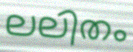
ലലിതം